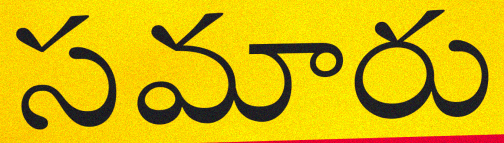
సమారు